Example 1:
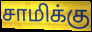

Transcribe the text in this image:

சாமிக்கு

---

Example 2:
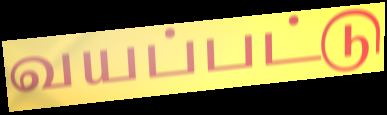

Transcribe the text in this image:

வயப்பட்டு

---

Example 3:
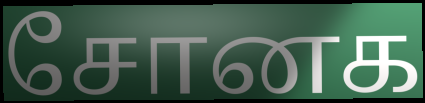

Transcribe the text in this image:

சோனக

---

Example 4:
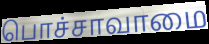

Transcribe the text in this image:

பொச்சாவாமை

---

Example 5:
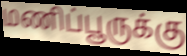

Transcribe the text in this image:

மணிப்பூருக்கு